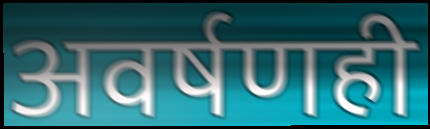
अवर्षणही